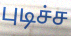
புடிச்ச